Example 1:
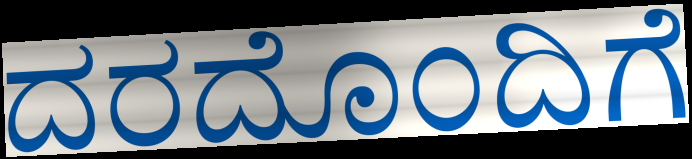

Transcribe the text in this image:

ದರದೊಂದಿಗೆ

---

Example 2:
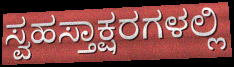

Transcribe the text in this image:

ಸ್ವಹಸ್ತಾಕ್ಷರಗಳಲ್ಲಿ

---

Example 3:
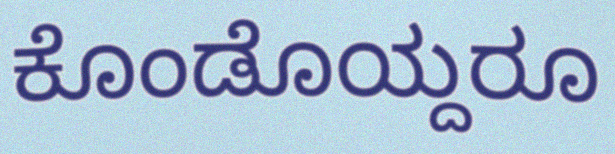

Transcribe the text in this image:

ಕೊಂಡೊಯ್ದರೂ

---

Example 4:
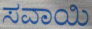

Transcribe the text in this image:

ಸವಾಯಿ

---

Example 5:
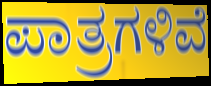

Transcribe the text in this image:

ಪಾತ್ರಗಳಿವೆ